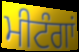
ਮੀਟੰਗਾਂ